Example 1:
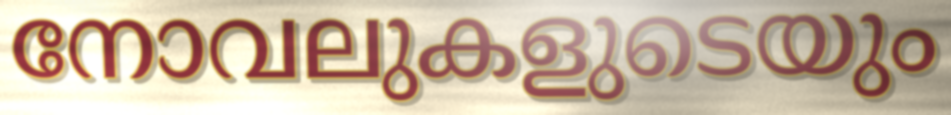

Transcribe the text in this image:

നോവലുകളുടെയും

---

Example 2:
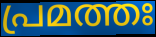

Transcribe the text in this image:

പ്രമത്തഃ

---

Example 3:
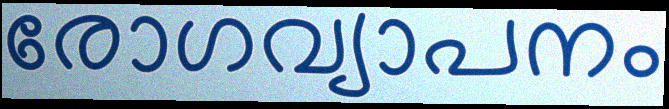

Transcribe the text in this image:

രോഗവ്യാപനം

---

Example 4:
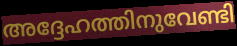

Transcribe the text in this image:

അദ്ദേഹത്തിനുവേണ്ടി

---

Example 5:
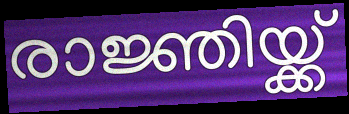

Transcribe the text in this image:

രാജ്ഞിയ്ക്ക്